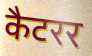
कैटरर